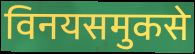
विनयसमुकसे